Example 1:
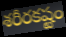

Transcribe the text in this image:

శరీరకష్టం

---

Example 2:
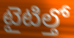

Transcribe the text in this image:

టైటిల్తో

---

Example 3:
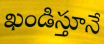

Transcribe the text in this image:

ఖండిస్తూనే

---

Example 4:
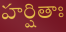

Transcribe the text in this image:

హర్షితాః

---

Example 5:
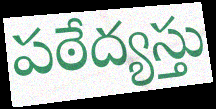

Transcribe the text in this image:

పఠేద్యస్తు